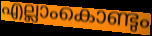
എല്ലാംകൊണ്ടും